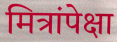
मित्रांपेक्षा